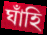
ঘাঁহি